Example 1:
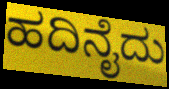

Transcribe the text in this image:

ಹದಿನೈದು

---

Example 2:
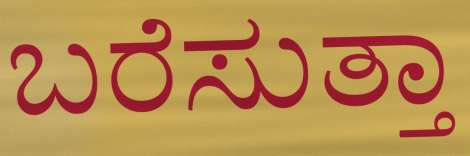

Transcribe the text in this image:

ಬರೆಸುತ್ತಾ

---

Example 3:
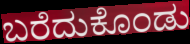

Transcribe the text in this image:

ಬರೆದುಕೊಂಡು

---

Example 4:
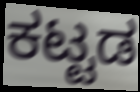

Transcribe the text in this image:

ಕಟ್ಟಡ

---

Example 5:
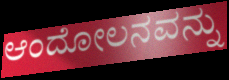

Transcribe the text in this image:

ಆಂದೋಲನವನ್ನು